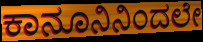
ಕಾನೂನಿನಿಂದಲೇ